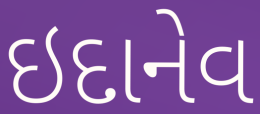
ઇદાનેવ